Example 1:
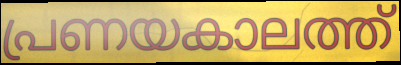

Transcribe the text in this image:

പ്രണയകാലത്ത്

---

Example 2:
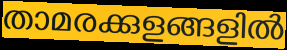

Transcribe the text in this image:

താമരക്കുളങ്ങളിൽ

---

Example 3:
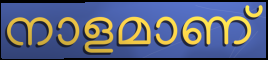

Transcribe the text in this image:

നാളമാണ്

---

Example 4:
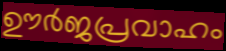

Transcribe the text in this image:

ഊർജപ്രവാഹം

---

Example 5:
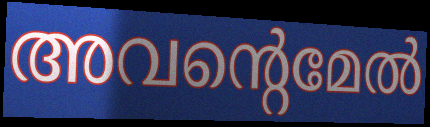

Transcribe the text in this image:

അവന്റെമേൽ